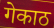
गेकाठ